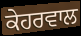
ਕੇਹਰਵਾਲ